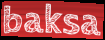
baksa